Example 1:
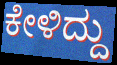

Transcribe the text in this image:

ಕೇಳಿದ್ದು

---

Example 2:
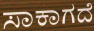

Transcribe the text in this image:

ಸಾಕಾಗದೆ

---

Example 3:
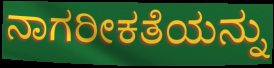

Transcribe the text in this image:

ನಾಗರೀಕತೆಯನ್ನು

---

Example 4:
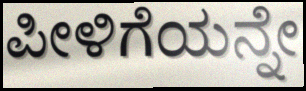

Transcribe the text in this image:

ಪೀಳಿಗೆಯನ್ನೇ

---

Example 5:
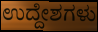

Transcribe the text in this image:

ಉದ್ದೇಶಗಳು